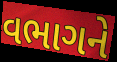
વભાગને